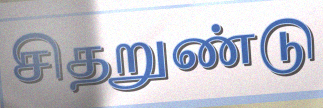
சிதறுண்டு